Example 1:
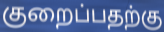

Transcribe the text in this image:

குறைப்பதற்கு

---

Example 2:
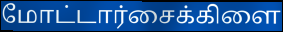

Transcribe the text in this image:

மோட்டார்சைக்கிளை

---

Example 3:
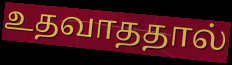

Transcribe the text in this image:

உதவாததால்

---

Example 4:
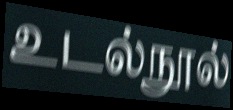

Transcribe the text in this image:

உடல்நூல்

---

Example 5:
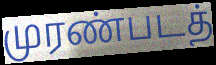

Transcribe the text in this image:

முரண்படத்